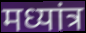
मध्यांत्र